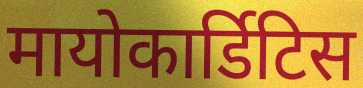
मायोकार्डिटिस